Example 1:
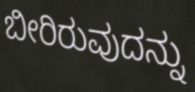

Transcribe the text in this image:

ಬೀರಿರುವುದನ್ನು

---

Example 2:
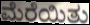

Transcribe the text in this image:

ಮೆರೆಯಿತು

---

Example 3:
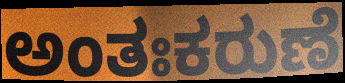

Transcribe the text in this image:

ಅಂತಃಕರುಣೆ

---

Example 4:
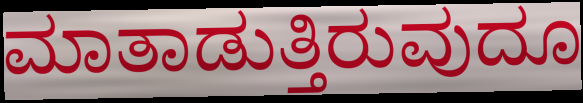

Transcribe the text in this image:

ಮಾತಾಡುತ್ತಿರುವುದೂ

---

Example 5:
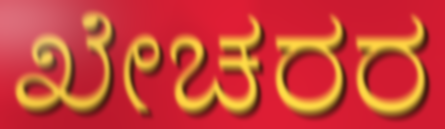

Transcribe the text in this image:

ಖೇಚರರ